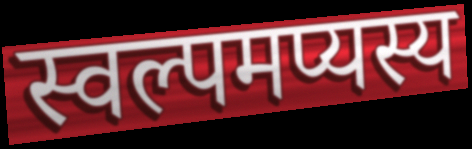
स्वल्पमप्यस्य